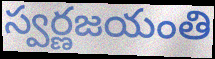
స్వర్ణజయంతి